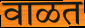
वाळत